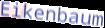
Eikenbaum